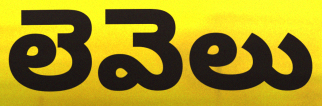
లెవెలు